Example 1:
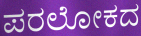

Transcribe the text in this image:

ಪರಲೋಕದ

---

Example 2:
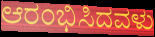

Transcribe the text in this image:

ಆರಂಭಿಸಿದವಳು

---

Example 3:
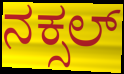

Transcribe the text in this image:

ನಕ್ಸಲ್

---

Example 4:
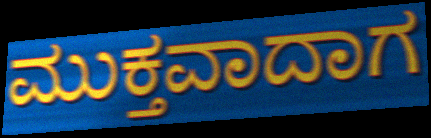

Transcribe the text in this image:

ಮುಕ್ತವಾದಾಗ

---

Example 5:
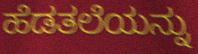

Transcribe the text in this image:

ಹೆಡತಲೆಯನ್ನು